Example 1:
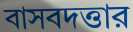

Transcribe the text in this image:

বাসবদত্তার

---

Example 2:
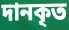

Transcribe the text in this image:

দানকৃত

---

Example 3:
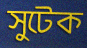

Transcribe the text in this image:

সুটেক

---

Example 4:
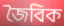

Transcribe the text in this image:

জৈবিক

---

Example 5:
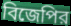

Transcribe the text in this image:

বিজেপির